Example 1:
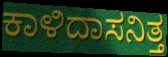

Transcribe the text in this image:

ಕಾಳಿದಾಸನಿತ್ತ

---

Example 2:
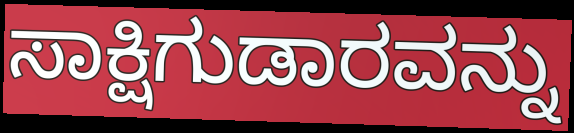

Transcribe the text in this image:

ಸಾಕ್ಷಿಗುಡಾರವನ್ನು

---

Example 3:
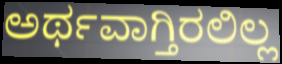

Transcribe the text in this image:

ಅರ್ಥವಾಗ್ತಿರಲಿಲ್ಲ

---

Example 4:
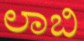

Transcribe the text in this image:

ಲಾಬಿ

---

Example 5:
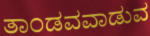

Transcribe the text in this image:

ತಾಂಡವವಾಡುವ